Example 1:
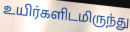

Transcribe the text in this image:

உயிர்களிடமிருந்து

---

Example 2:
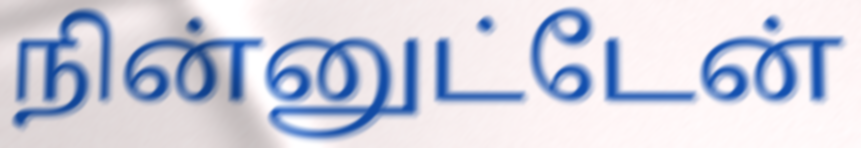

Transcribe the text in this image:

நின்னுட்டேன்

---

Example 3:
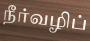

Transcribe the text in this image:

நீர்வழிப்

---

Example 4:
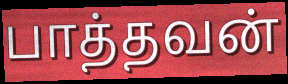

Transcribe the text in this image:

பாத்தவன்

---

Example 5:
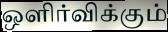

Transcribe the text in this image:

ஒளிர்விக்கும்